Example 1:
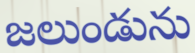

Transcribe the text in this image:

జలుండును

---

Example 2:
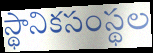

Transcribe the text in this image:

స్థానికసంస్థల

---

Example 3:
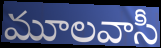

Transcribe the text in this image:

మూలవాసీ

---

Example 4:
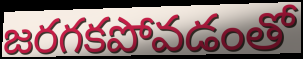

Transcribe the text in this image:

జరగకపోవడంతో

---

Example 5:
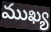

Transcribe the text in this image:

ముఖ్య